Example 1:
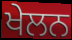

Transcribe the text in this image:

ਖੇਲਨ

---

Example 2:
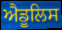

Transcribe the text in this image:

ਐਡੂਲਿਸ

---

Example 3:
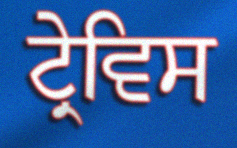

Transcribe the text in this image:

ਟ੍ਰੇਵਿਸ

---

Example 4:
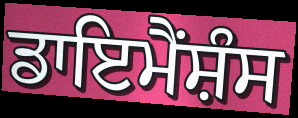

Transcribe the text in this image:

ਡਾਇਮੈਂਸ਼ੰਸ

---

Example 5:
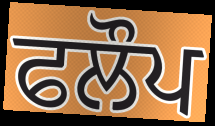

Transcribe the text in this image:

ਫਲੌਪ